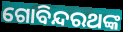
ଗୋବିନ୍ଦରଥଙ୍କ